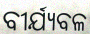
ବୀର୍ଯ୍ୟବଳ